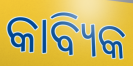
କାବ୍ୟିକ